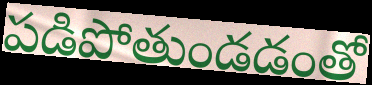
పడిపోతుండడంతో